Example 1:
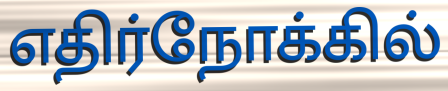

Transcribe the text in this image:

எதிர்நோக்கில்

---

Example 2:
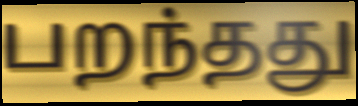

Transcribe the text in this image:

பறந்தது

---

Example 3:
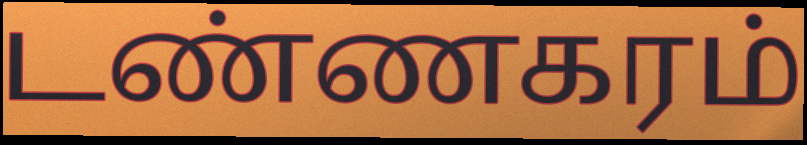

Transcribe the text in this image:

டண்ணகரம்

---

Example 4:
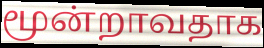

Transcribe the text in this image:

மூன்றாவதாக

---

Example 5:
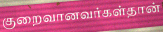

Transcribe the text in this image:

குறைவானவர்கள்தான்